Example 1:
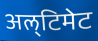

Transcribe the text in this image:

अल्टिमेट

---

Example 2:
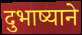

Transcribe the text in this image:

दुभाष्याने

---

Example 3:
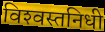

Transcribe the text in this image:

विश्वस्तनिधी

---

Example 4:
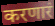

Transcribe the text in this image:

करणारं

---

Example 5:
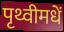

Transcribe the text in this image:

पृथ्वीमधें